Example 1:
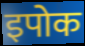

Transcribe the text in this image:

इपोक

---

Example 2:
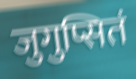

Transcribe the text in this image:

जुगुप्सितं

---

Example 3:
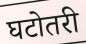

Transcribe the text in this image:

घटोतरी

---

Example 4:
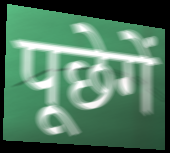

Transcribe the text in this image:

पूछेगें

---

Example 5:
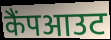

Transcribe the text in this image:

कैंपआउट